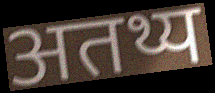
अतथ्य